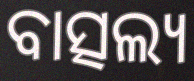
ବାତ୍ସଲ୍ଯ